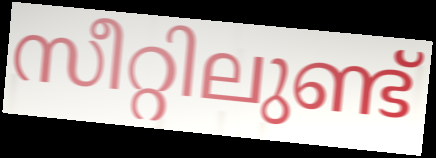
സീറ്റിലുണ്ട്